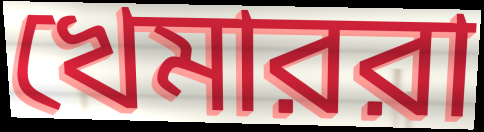
খেমাররা